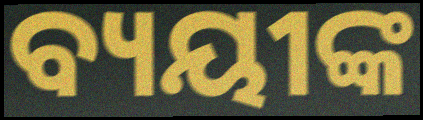
ବ୍ୟୟୀଙ୍କ